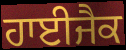
ਹਾਈਜੈਕ